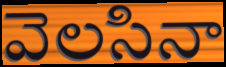
వెలసినా